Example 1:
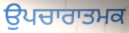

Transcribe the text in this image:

ਉਪਚਾਰਾਤਮਕ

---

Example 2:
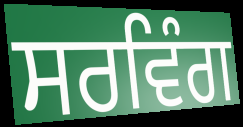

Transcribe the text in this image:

ਸਰਵਿੰਗ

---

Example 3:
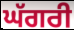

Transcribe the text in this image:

ਘੱਗਰੀ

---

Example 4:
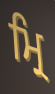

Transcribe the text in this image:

ਮ੍ਰਿ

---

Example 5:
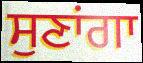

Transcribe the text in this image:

ਸੁਣਾਂਗਾ